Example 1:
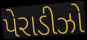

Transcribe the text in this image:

પેરાડીઝો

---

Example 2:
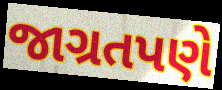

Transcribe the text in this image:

જાગ્રતપણે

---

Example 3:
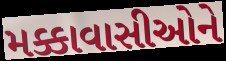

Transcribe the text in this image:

મક્કાવાસીઓને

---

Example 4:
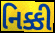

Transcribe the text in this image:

નિક્કી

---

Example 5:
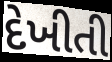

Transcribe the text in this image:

દેખીતી